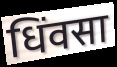
धिंवसा